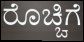
ರೊಚ್ಚಿಗೆ